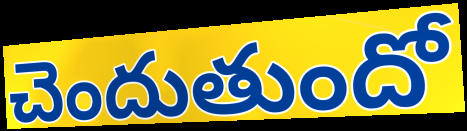
చెందుతుందో